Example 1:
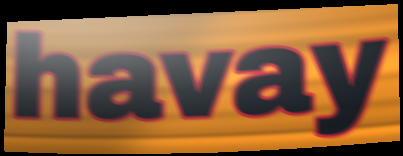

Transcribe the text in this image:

havay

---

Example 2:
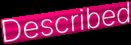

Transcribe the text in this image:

Described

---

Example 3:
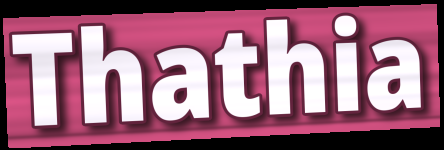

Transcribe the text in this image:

Thathia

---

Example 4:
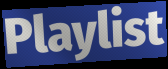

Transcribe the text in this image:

Playlist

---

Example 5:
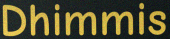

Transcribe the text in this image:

Dhimmis